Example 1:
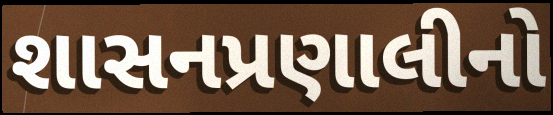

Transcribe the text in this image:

શાસનપ્રણાલીનો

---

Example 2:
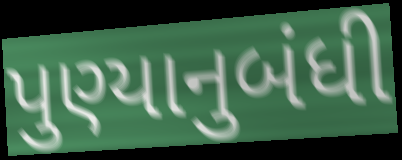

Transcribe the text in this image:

પુણ્યાનુબંધી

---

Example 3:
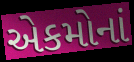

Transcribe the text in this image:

એકમોનાં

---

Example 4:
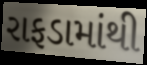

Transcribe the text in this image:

રાફડામાંથી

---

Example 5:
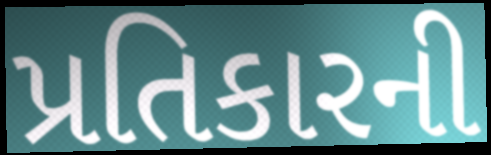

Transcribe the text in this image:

પ્રતિકારની